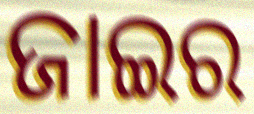
ଜାଇର